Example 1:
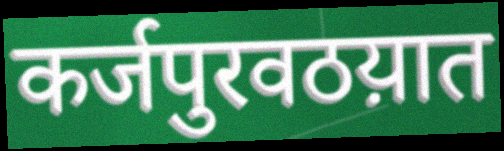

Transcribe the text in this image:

कर्जपुरवठय़ात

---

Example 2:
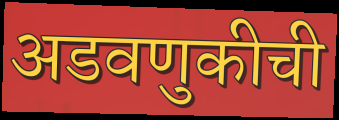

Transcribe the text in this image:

अडवणुकीची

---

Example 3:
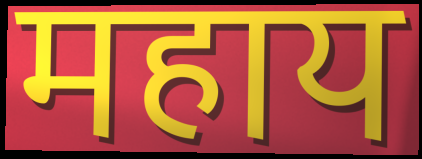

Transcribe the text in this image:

महाय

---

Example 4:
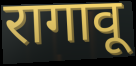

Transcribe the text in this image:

रागावू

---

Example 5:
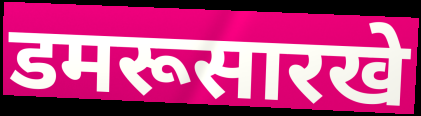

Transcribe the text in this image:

डमरूसारखे